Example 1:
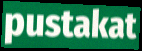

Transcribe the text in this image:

pustakat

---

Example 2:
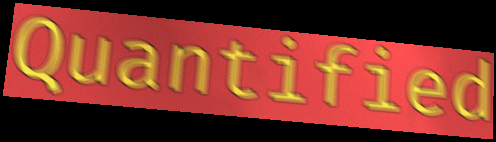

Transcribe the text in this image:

Quantified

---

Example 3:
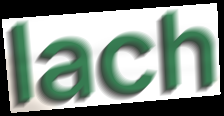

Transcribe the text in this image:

lach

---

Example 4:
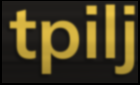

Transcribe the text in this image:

tpilj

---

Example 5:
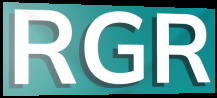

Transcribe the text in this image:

RGR